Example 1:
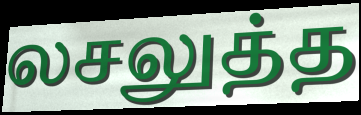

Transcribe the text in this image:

லசலுத்த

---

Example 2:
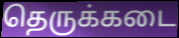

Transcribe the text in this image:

தெருக்கடை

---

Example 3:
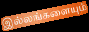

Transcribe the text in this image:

இல்லங்களையும்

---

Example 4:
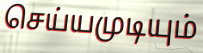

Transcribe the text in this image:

செய்யமுடியும்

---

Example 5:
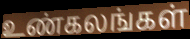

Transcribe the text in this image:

உண்கலங்கள்